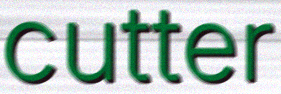
cutter